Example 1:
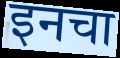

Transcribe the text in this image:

इनचा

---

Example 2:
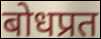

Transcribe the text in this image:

बोधप्रत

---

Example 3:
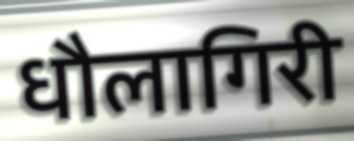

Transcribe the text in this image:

धौलागिरी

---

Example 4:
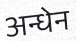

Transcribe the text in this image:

अन्धेन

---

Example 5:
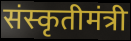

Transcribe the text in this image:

संस्कृतीमंत्री